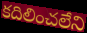
కదిలించలేని